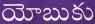
యోబుకు